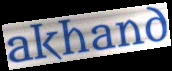
akhand